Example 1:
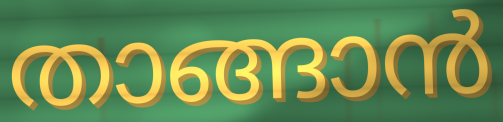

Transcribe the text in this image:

താങ്ങാൻ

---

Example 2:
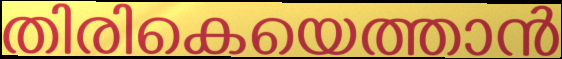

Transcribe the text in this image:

തിരികെയെത്താൻ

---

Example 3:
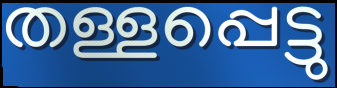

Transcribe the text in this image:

തള്ളപ്പെട്ടു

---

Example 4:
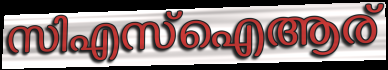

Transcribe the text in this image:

സിഎസ്ഐആര്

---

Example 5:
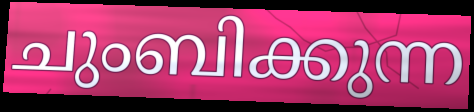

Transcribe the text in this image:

ചുംബിക്കുന്ന